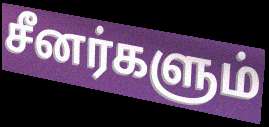
சீனர்களும்